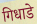
गिधाडे